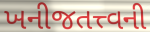
ખનીજતત્ત્વની